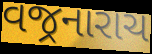
વજ્રનારાચ